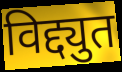
विद्द्युत